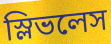
স্লিভলেস